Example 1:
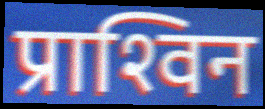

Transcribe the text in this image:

प्राश्विन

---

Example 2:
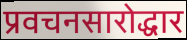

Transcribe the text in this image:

प्रवचनसारोद्धार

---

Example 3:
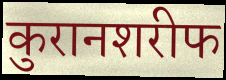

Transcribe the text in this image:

कुरानशरीफ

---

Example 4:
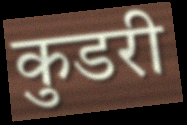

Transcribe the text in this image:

कुडरी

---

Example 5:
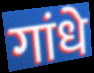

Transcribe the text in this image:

गांधे